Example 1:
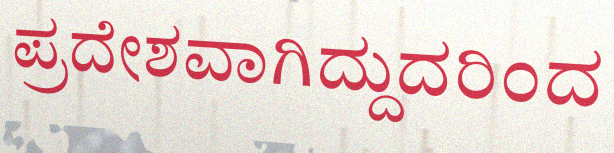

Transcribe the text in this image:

ಪ್ರದೇಶವಾಗಿದ್ದುದರಿಂದ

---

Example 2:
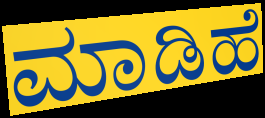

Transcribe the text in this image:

ಮಾಡಿಹೆ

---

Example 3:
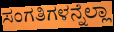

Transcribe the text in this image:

ಸಂಗತಿಗಳನ್ನೆಲ್ಲಾ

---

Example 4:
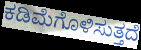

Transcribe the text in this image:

ಕಡಿಮೆಗೊಳಿಸುತ್ತದೆ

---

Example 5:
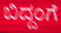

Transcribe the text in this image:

ಬಿದ್ದಂಗೆ